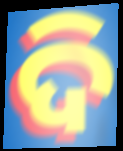
ଦି